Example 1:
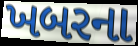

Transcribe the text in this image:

ખબરના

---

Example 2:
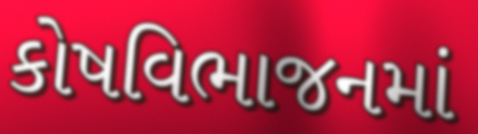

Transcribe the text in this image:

કોષવિભાજનમાં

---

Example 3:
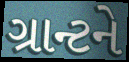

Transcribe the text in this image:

ગ્રાન્ટને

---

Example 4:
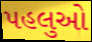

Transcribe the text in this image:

પહલુઓ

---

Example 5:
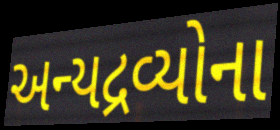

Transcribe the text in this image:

અન્યદ્રવ્યોના